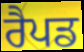
ਰੈਪਡ